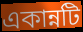
একান্নটি